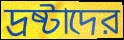
দ্রষ্টাদের